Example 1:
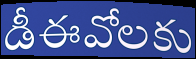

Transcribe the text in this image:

డీఈవోలకు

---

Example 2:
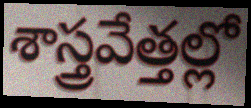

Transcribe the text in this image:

శాస్త్రవేత్తల్లో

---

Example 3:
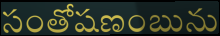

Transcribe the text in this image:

సంతోషణంబును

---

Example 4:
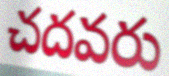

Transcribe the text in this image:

చదవరు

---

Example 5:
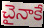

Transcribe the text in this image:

చైనాకే